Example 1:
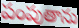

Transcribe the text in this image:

పంపుతాను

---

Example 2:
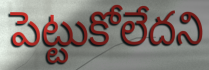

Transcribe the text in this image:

పెట్టుకోలేదని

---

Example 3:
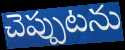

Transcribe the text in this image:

చెప్పుటను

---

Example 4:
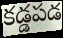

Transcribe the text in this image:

కడ్డపడ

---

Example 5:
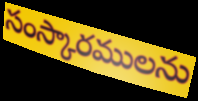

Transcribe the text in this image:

సంస్కారములను